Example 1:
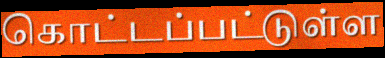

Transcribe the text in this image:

கொட்டப்பட்டுள்ள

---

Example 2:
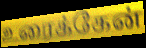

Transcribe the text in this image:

உரைக்கேன்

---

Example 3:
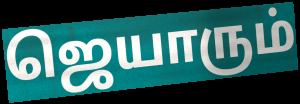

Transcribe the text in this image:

ஜெயாரும்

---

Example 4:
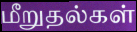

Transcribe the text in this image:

மீறுதல்கள்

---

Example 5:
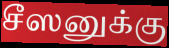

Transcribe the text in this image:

சீஸனுக்கு